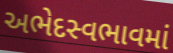
અભેદસ્વભાવમાં